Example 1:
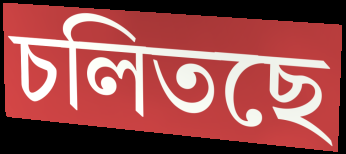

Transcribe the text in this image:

চলিতছে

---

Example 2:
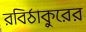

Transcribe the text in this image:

রবিঠাকুরের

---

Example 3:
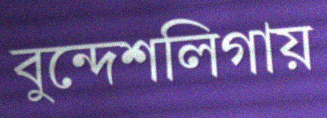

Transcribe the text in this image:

বুন্দেশলিগায়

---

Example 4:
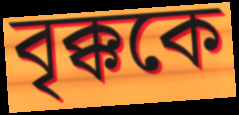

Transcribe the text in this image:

বৃক্ককে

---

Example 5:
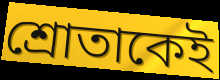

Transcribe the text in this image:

শ্রোতাকেই